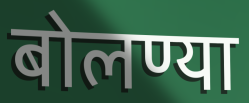
बोलण्या